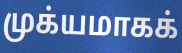
முக்யமாகக்